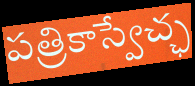
పత్రికాస్వేచ్ఛ